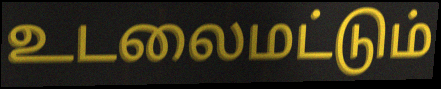
உடலைமட்டும்